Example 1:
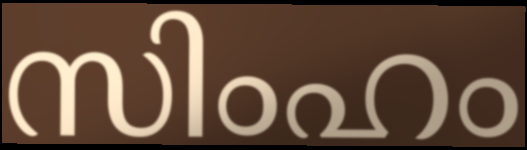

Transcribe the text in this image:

സിംഹം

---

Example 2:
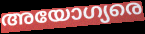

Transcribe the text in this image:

അയോഗ്യരെ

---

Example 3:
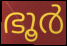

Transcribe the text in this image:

ഭൂർ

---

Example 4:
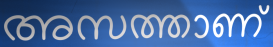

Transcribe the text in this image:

അസത്താണ്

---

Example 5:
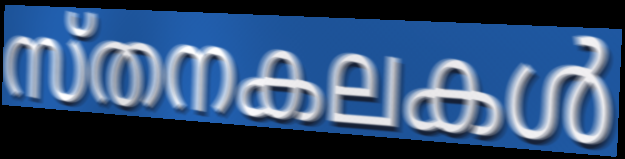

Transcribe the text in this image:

സ്തനകലകൾ